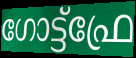
ഗോട്ട്ഫ്രേ